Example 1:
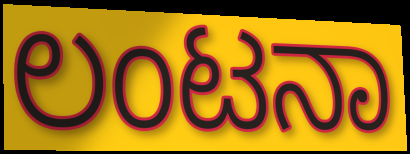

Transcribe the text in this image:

ಲಂಟನಾ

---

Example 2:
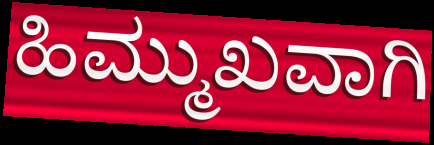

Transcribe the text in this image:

ಹಿಮ್ಮುಖವಾಗಿ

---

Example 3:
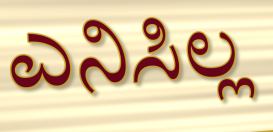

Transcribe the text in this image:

ಎನಿಸಿಲ್ಲ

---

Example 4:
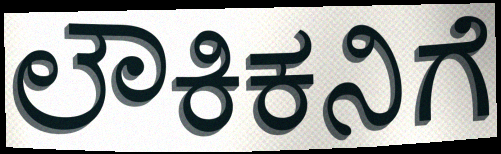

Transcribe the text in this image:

ಲೌಕಿಕನಿಗೆ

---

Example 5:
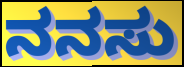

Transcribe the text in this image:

ನನಸು